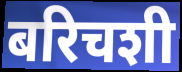
बरिचशी